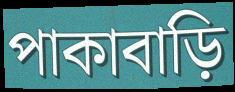
পাকাবাড়ি